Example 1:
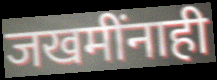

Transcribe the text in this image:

जखमींनाही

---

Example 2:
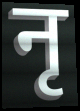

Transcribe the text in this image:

नृ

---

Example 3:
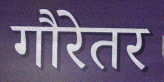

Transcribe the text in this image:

गौरेतर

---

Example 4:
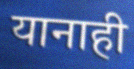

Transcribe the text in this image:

यानाही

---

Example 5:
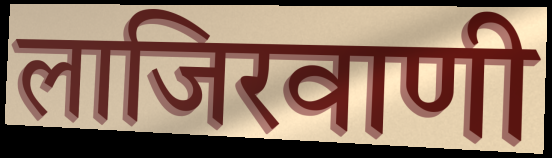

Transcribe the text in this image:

लाजिरवाणी